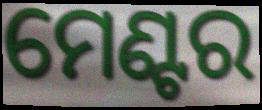
ମେଣ୍ଟର